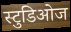
स्टुडिओज